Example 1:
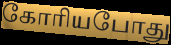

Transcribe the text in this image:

கோரியபோது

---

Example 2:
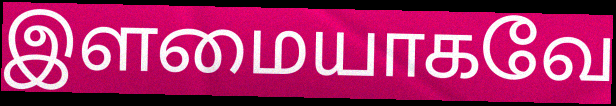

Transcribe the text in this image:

இளமையாகவே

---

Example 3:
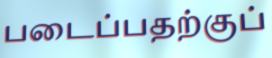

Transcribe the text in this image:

படைப்பதற்குப்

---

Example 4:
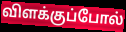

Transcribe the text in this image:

விளக்குப்போல்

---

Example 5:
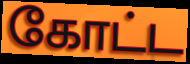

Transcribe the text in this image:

கோட்ட